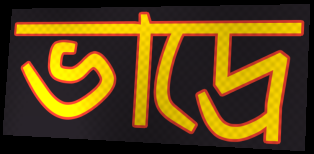
ভাদ্রে